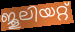
ജൂലിയറ്റ്